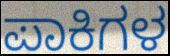
ಪಾಕಿಗಳ